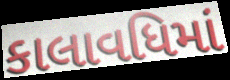
કાલાવધિમાં